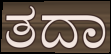
ತದಾ